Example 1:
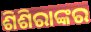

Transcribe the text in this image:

ଶିଶିରାଙ୍କର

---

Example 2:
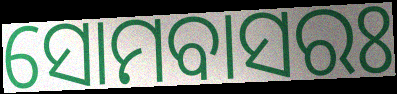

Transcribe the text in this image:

ସୋମବାସରଃ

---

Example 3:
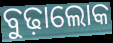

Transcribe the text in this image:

ବୁଢ଼ାଲୋକ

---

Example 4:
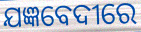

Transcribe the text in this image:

ଯଜ୍ଞବେଦୀରେ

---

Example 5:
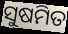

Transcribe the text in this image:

ସୁଷମିତ